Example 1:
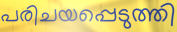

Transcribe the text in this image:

പരിചയപ്പെടുത്തി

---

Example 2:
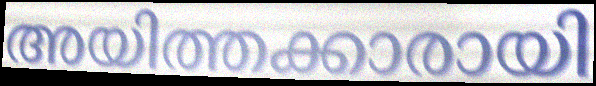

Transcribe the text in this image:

അയിത്തക്കാരായി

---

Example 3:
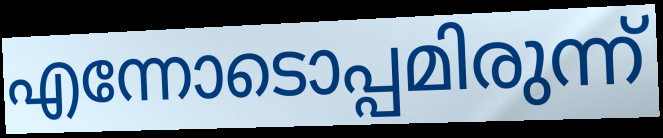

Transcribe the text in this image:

എന്നോടൊപ്പമിരുന്ന്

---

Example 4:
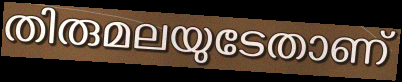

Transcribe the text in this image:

തിരുമലയുടേതാണ്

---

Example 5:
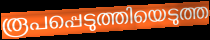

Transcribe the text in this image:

രൂപപ്പെടുത്തിയെടുത്ത